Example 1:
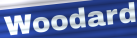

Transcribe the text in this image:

Woodard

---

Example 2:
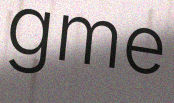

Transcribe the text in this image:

gme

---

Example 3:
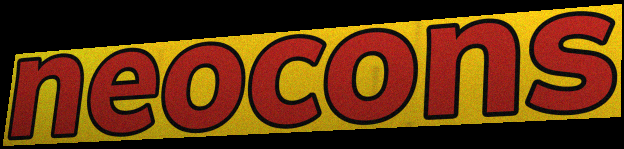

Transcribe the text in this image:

neocons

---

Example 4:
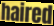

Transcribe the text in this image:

haired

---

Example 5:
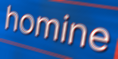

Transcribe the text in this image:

homine